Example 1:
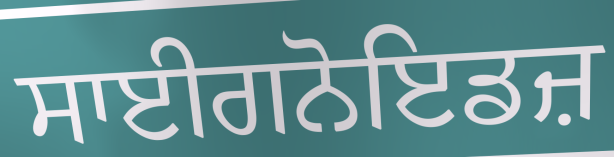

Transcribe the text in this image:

ਸਾਈਗਨੋਇਡਜ਼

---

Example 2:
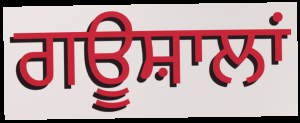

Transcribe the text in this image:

ਗਊਸ਼ਾਲਾਂ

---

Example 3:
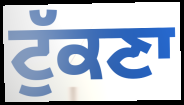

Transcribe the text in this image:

ਟੁੱਕਣਾ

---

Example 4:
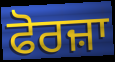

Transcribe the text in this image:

ਫੋਰਜ਼ਾ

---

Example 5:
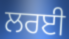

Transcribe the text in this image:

ਲਰਈ